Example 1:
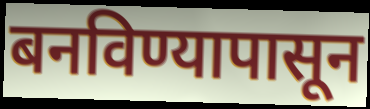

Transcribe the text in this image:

बनविण्यापासून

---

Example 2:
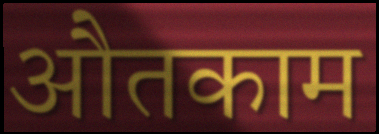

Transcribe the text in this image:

औतकाम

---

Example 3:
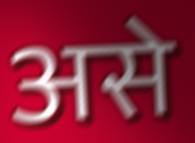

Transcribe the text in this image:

असे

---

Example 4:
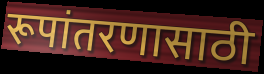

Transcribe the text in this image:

रूपांतरणासाठी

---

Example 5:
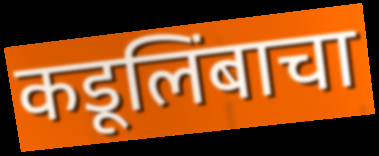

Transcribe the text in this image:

कडूलिंबाचा